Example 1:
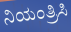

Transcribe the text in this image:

ನಿಯಂತ್ರಿಸಿ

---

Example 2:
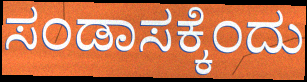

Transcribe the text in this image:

ಸಂಡಾಸಕ್ಕೆಂದು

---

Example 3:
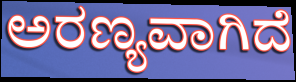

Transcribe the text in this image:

ಅರಣ್ಯವಾಗಿದೆ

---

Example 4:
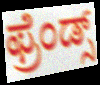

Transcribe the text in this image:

ಫ್ರೆಂಡ್ಸ್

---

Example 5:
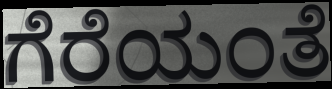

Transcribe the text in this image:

ಗೆರೆಯಂತೆ